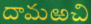
దామఱచి